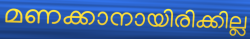
മണക്കാനായിരിക്കില്ല